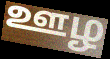
ஊழ